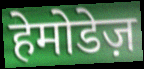
हेमोडेज़